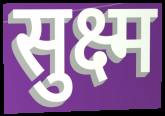
सुक्ष्म